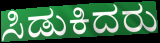
ಸಿಡುಕಿದರು